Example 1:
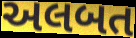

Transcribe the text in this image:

અલબત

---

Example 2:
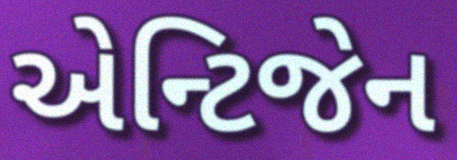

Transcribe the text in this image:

એન્ટિજેન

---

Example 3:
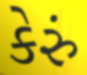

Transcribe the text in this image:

કેરું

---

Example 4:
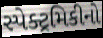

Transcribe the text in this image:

સ્પેક્ટ્રમિકીનો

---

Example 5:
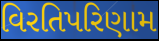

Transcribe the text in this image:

વિરતિપરિણામ